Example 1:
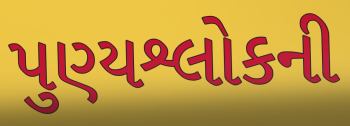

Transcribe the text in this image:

પુણ્યશ્લોકની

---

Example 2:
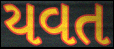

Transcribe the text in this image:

યવત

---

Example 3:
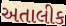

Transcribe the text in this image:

અતાલીક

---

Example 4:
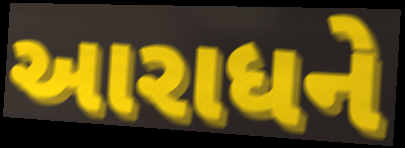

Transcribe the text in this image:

આરાધને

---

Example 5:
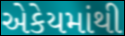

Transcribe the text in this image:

એકેયમાંથી